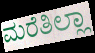
ಮರೆತಿಲ್ಲಾ